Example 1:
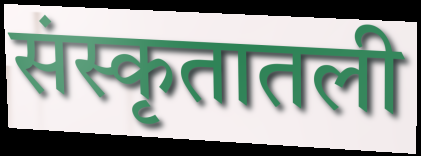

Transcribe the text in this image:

संस्कृतातली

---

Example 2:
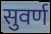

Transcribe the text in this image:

सुवर्ण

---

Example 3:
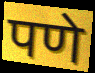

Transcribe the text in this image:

पणे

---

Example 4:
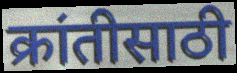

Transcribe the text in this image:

क्रांतीसाठी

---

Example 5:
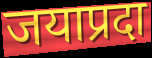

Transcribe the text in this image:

जयाप्रदा